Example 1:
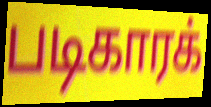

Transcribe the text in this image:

படிகாரக்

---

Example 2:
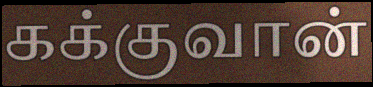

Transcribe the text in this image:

கக்குவான்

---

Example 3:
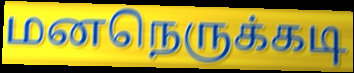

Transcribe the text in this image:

மனநெருக்கடி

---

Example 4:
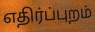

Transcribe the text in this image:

எதிர்ப்புறம்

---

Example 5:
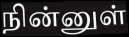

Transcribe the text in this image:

நின்னுள்